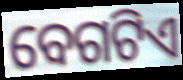
ବେଗଟିଏ